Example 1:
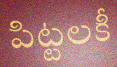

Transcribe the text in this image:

పిట్టలకీ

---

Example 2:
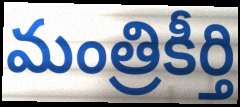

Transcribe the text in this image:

మంత్రికీర్తి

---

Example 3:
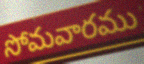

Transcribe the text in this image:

సోమవారము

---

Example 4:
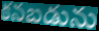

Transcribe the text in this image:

కనబడును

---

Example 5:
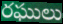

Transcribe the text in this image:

రఘులు